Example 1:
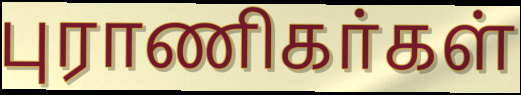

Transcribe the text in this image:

புராணிகர்கள்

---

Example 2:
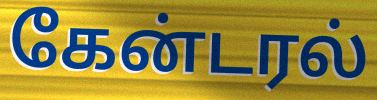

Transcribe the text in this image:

கேன்டரல்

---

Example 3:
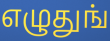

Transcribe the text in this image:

எழுதுங்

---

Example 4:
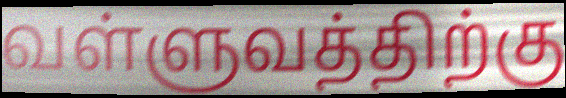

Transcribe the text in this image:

வள்ளுவத்திற்கு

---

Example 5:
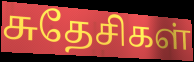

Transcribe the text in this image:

சுதேசிகள்